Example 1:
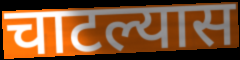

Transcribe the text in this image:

चाटल्यास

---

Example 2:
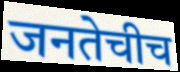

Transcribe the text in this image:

जनतेचीच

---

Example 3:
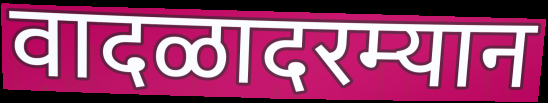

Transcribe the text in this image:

वादळादरम्यान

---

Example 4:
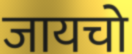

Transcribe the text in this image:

जायचो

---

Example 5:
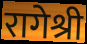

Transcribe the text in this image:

रागेश्री